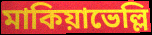
মাকিয়াভেল্লি